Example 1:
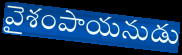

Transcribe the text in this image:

వైశంపాయనుడు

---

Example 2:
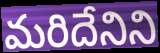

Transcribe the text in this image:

మరిదేనిని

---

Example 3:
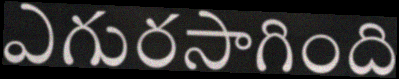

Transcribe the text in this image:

ఎగురసాగింది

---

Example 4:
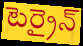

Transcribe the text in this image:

టెర్రైన్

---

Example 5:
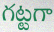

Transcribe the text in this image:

గట్టగా